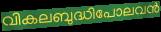
വികലബുദ്ധിപോലവൻ